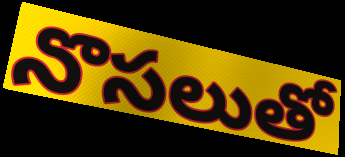
నొసలుతో